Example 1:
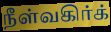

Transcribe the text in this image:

நீள்வகிர்க்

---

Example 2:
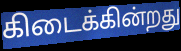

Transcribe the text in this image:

கிடைக்கின்றது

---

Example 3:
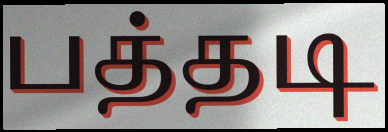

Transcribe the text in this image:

பத்தடி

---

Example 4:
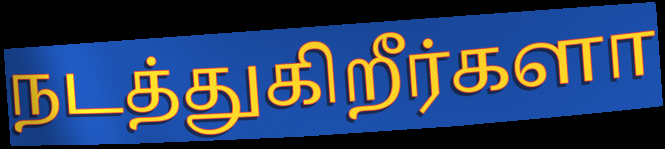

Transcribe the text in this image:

நடத்துகிறீர்களா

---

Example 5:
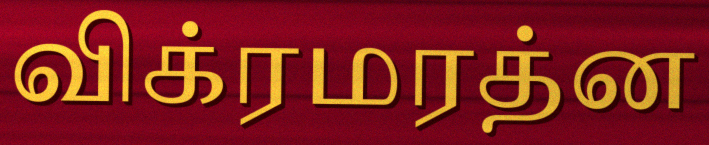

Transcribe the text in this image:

விக்ரமரத்ன